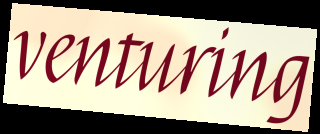
venturing